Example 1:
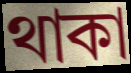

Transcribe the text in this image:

থাকা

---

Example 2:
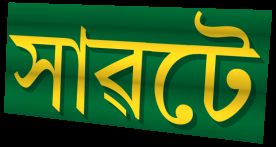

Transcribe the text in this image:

সাৱটে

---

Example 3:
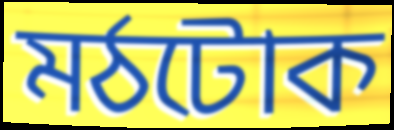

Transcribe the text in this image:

মঠটোক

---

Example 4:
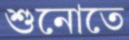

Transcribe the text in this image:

শুনোতে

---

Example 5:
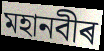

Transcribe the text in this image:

মহানবীৰ